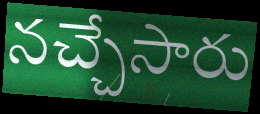
నచ్చేసారు